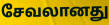
சேவலானது